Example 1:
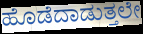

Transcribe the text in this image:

ಹೊಡೆದಾಡುತ್ತಲೇ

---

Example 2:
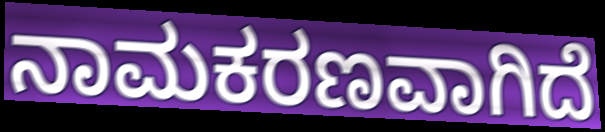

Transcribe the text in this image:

ನಾಮಕರಣವಾಗಿದೆ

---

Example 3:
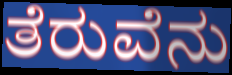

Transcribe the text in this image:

ತೆರುವೆನು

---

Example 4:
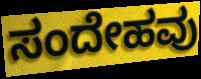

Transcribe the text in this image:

ಸಂದೇಹವು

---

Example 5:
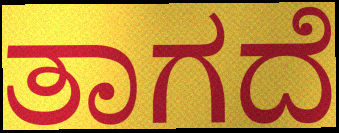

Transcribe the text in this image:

ತಾಗದೆ